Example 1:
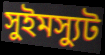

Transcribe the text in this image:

সুইমস্যুট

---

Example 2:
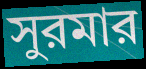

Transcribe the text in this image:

সুরমার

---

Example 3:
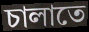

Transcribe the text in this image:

চালাতে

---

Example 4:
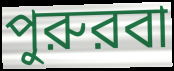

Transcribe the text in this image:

পুরুরবা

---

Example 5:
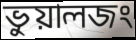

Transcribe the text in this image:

ভুয়ালজং